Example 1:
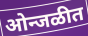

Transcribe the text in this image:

ओन्जळीत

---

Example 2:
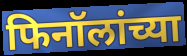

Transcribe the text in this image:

फिनॉलांच्या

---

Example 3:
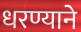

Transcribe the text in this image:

धरण्याने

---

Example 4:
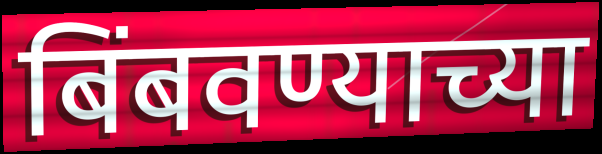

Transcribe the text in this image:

बिंबवण्याच्या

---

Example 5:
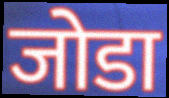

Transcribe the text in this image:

जोडा